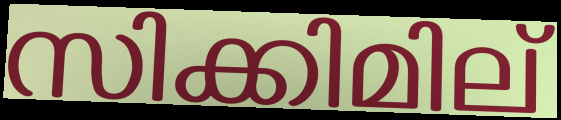
സിക്കിമില്